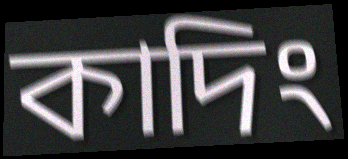
কাদিং